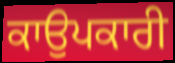
ਕਾਉਪਕਾਰੀ